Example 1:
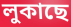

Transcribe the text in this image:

লুকাছে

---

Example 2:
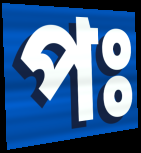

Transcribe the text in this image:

পঃ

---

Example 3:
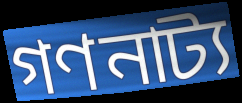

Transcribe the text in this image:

গণনাট্য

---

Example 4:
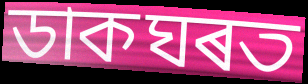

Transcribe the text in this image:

ডাকঘৰত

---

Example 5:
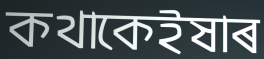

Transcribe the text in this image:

কথাকেইষাৰ